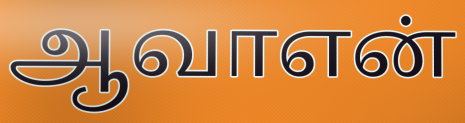
ஆவாஎன்